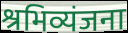
श्रभिव्यंजना